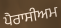
ਪੈਰਾਸੀਅਮ